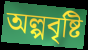
অল্পবৃষ্টি